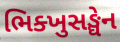
ભિક્ખુસઙ્ઘેન